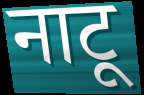
नाटू